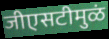
जीएसटीमुळं